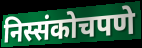
निस्संकोचपणे